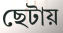
ছেটায়